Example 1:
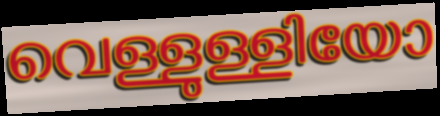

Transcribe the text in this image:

വെള്ളുള്ളിയോ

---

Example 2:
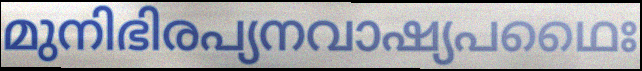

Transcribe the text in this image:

മുനിഭിരപ്യനവാഷ്യപഥൈഃ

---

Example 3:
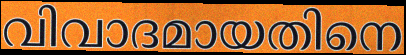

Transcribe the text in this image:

വിവാദമായതിനെ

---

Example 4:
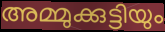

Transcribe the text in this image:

അമ്മുക്കുട്ടിയും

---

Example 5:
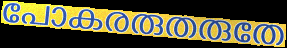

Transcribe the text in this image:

പോകരരുതരുതേ